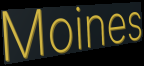
Moines